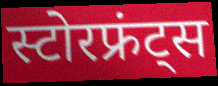
स्टोरफ्रंट्स